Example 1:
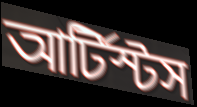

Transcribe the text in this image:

আর্টিস্টস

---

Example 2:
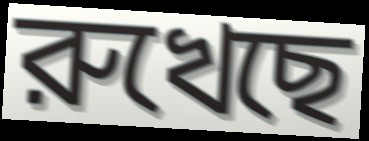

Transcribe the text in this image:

রুখেছে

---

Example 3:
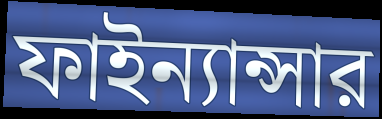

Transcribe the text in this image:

ফাইন্যান্সার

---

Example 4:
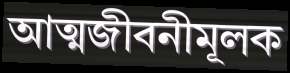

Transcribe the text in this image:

আত্মজীবনীমূলক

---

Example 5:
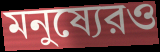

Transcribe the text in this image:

মনুষ্যেরও